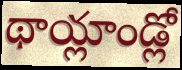
థాయ్లాండ్లో